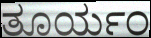
ತೂರ್ಯಂ